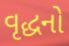
વૃદ્ધનો